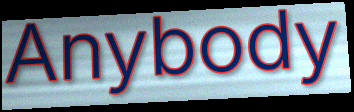
Anybody